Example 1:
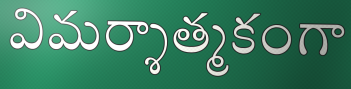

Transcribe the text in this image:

విమర్శాత్మకంగా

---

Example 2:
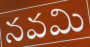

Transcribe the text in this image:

నవమి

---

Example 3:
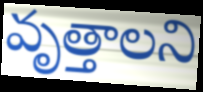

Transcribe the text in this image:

వృత్తాలని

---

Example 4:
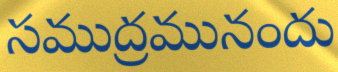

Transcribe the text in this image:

సముద్రమునందు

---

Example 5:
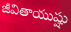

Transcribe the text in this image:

జీవితాయుష్షు